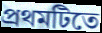
প্রথমটিতে